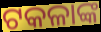
ଟକଳାଙ୍କ